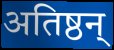
अतिष्ठन्